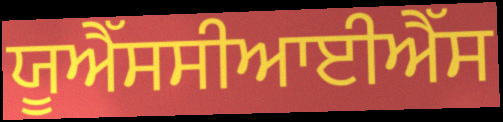
ਯੂਐੱਸਸੀਆਈਐੱਸ